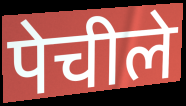
पेचीले